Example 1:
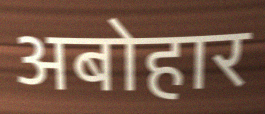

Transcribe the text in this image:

अबोहार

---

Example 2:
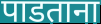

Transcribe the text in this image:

पाडताना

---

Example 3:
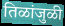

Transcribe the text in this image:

तिळांजुळी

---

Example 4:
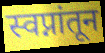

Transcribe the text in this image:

स्वप्नांतून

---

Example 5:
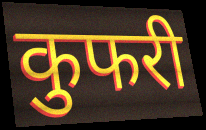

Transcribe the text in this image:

कुफरी